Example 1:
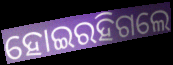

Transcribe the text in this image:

ହୋଇରହିଗଲେ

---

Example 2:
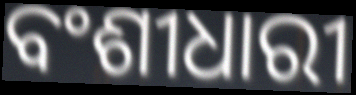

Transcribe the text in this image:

ବଂଶୀଧାରୀ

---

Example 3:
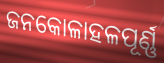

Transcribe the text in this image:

ଜନକୋଳାହଳପୂର୍ଣ୍ଣ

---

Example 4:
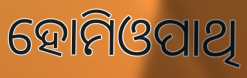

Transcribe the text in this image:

ହୋମିଓପାଥି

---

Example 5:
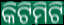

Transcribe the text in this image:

କିଟିମିଟି